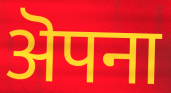
ऄपना